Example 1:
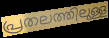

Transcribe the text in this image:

പ്രതലത്തിലുള്ള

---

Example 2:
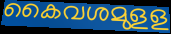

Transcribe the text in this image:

കൈവശമുളള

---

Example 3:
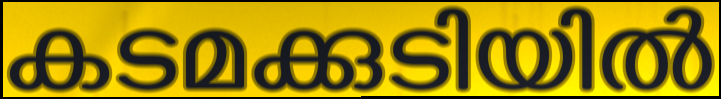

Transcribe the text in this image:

കടമക്കുടിയിൽ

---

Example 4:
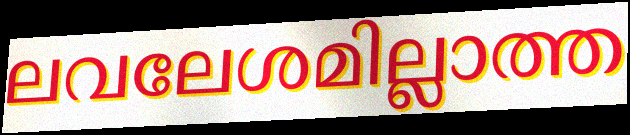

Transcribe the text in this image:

ലവലേശമില്ലാത്ത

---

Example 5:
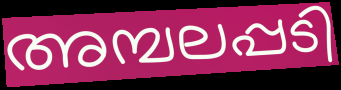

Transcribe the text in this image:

അമ്പലപ്പടി